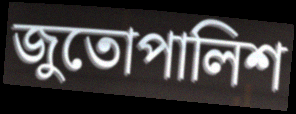
জুতোপালিশ